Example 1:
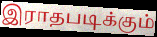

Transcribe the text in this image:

இராதபடிக்கும்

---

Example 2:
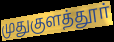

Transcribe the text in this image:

முதுகுளத்தூர்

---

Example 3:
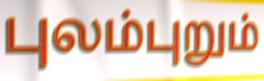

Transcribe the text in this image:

புலம்புறும்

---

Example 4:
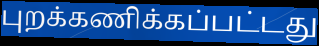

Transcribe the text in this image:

புறக்கணிக்கப்பட்டது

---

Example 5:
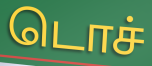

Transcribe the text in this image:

டொச்